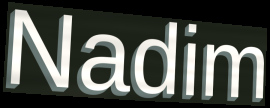
Nadim